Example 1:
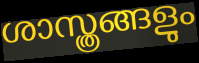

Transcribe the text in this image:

ശാസ്ത്രങ്ങളും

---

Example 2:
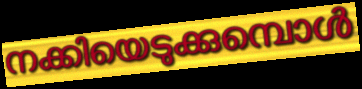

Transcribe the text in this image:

നക്കിയെടുക്കുമ്പൊൾ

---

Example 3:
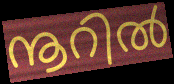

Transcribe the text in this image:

നൂറിൽ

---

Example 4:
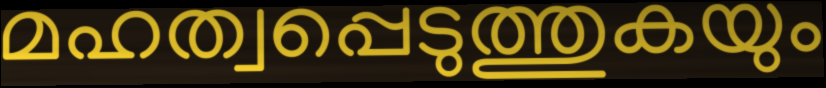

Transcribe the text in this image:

മഹത്വപ്പെടുത്തുകയും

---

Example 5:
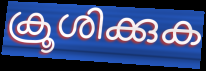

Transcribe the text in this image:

ക്രൂശിക്കുക